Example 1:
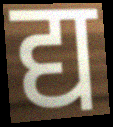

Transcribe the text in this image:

द्य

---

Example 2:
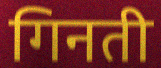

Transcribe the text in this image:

गिनती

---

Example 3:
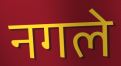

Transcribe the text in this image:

नगले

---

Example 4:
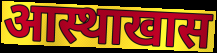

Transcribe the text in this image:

आस्थाखास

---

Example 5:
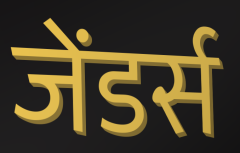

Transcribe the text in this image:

जेंडर्स